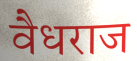
वैधराज